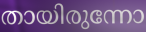
തായിരുന്നോ